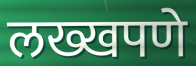
लख्खपणे